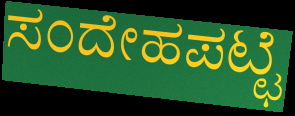
ಸಂದೇಹಪಟ್ಟೆ